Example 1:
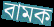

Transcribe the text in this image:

বামক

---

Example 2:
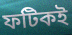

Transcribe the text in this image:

ফটিকই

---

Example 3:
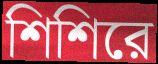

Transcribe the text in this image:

শিশিরে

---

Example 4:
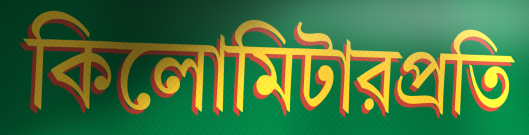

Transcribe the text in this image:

কিলোমিটারপ্রতি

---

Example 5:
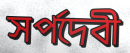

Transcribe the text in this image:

সর্পদেবী